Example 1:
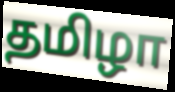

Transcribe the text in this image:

தமிழா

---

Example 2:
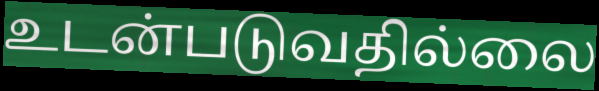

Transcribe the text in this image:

உடன்படுவதில்லை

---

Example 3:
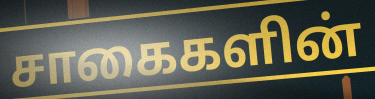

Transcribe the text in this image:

சாகைகளின்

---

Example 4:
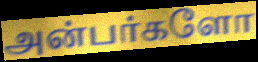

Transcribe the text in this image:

அன்பர்களோ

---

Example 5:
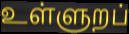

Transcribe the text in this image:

உள்ளுறப்